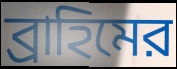
ব্রাহিমের